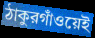
ঠাকুরগাঁওয়েই